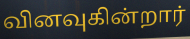
வினவுகின்றார்